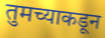
तुमच्याकडून